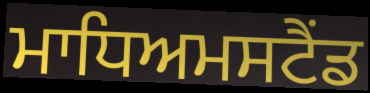
ਮਾਧਿਅਮਸਟੈਂਡ